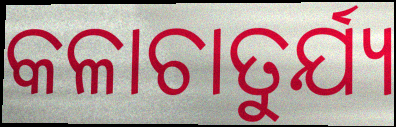
କଳାଚାତୁର୍ଯ୍ୟ